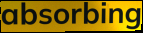
absorbing